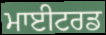
ਮਾਈਟਰਡ